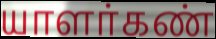
யாளர்கண்